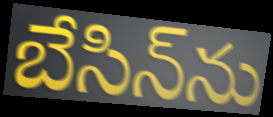
బేసిన్‌ను